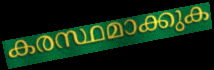
കരസ്ഥമാക്കുക